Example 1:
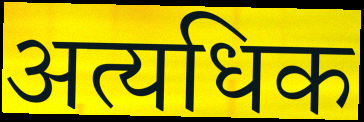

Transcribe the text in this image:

अत्‍यधिक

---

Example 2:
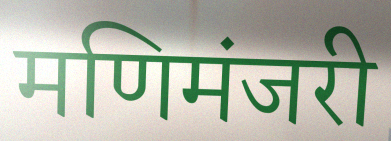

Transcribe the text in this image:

मणिमंजरी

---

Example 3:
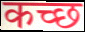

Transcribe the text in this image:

कच्‍छ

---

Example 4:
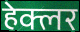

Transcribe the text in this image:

हेक्लर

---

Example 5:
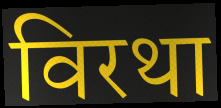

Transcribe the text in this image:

विरथा